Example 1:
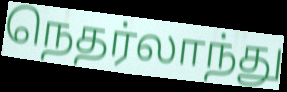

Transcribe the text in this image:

நெதர்லாந்து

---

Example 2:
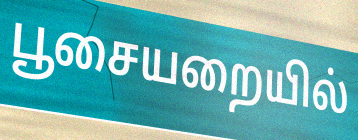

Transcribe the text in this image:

பூசையறையில்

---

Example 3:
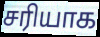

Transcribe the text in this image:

சரியாக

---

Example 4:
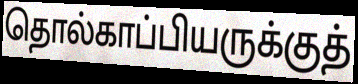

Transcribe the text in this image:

தொல்காப்பியருக்குத்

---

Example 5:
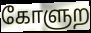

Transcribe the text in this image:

கோளுற